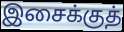
இசைக்குத்